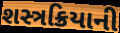
શસ્ત્રક્રિયાની